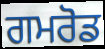
ਗਮਰੋਡ